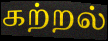
கற்றல்